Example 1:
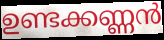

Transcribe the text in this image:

ഉണ്ടക്കണ്ണൻ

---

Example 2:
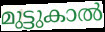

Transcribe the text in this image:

മുട്ടുകാൽ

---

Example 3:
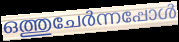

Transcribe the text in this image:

ഒത്തുചേർന്നപ്പോൾ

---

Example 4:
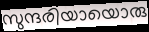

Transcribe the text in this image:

സുന്ദരിയായൊരു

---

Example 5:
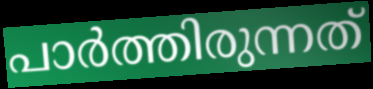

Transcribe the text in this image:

പാർത്തിരുന്നത്